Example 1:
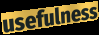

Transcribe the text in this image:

usefulness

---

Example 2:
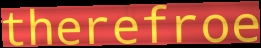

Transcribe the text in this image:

therefroe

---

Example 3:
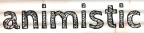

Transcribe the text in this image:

animistic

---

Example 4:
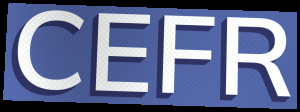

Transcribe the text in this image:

CEFR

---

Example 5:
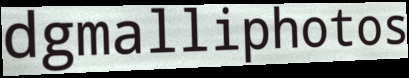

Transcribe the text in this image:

dgmalliphotos